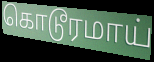
கொடூரமாய்